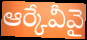
ఆర్కేవీవై